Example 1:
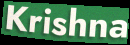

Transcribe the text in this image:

Krishna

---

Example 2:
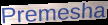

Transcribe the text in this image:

Premesha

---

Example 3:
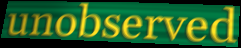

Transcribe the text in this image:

unobserved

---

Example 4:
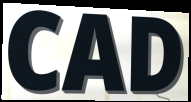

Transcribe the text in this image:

CAD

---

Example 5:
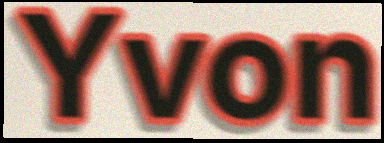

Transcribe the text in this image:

Yvon